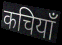
कचियाँ